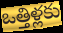
ఒత్తిళ్లకు